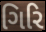
ગિરિ